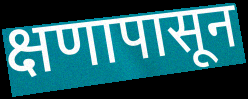
क्षणापासून